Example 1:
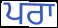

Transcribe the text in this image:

ਪਰਾ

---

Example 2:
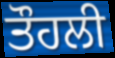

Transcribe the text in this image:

ਤੌਹਲੀ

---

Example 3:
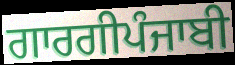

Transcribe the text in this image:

ਗਾਰਗੀਪੰਜਾਬੀ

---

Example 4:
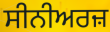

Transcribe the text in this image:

ਸੀਨੀਅਰਜ਼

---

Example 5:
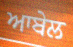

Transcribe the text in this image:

ਆਬੇਲ